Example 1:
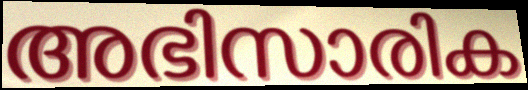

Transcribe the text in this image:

അഭിസാരിക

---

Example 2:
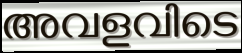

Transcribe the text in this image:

അവളവിടെ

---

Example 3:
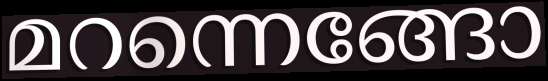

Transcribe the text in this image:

മറന്നെങ്ങോ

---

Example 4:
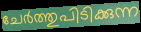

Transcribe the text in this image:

ചേർത്തുപിടിക്കുന്ന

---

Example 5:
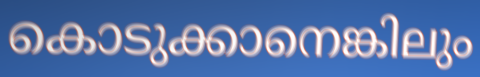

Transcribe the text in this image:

കൊടുക്കാനെങ്കിലും